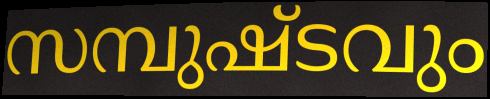
സമ്പുഷ്ടവും